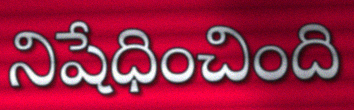
నిషేధించింది